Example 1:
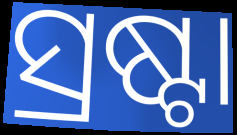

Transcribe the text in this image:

ସ୍ରଷ୍ଟା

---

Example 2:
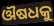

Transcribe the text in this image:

ଔଷଧକୁ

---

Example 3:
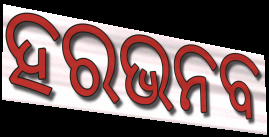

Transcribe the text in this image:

ହରଭନବ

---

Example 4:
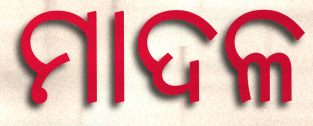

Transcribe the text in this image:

ମାଦଳ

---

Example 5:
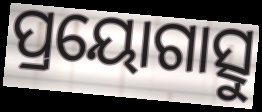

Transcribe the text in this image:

ପ୍ରୟୋଗାତ୍ସୁ